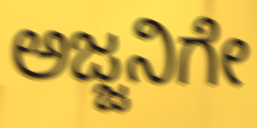
ಅಜ್ಜನಿಗೇ